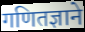
गणितज्ञाने